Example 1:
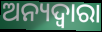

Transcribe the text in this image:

ଅନ୍ୟଦ୍ଵାରା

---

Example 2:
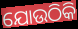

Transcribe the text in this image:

ଯୋଉଠିକି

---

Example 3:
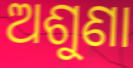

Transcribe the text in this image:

ଅଶୁଣା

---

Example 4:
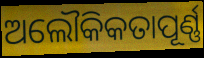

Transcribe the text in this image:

ଅଲୌକିକତାପୂର୍ଣ୍ଣ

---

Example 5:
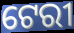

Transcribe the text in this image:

ଟେରୀ